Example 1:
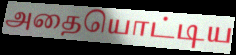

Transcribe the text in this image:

அதையொட்டிய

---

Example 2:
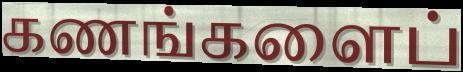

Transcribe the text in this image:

கணங்களைப்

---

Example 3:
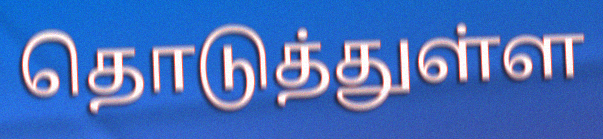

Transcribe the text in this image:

தொடுத்துள்ள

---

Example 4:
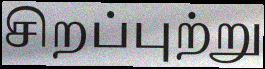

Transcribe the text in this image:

சிறப்புற்று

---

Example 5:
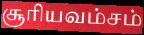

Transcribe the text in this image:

சூரியவம்சம்